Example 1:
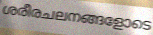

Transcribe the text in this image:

ശരീരചലനങ്ങളോടെ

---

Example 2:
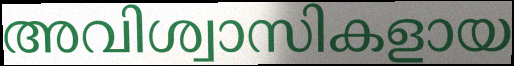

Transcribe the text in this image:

അവിശ്വാസികളായ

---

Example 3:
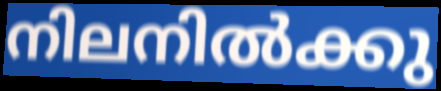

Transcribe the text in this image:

നിലനിൽക്കു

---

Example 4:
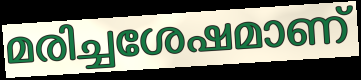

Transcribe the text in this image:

മരിച്ചശേഷമാണ്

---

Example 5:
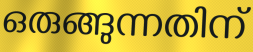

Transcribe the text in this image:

ഒരുങ്ങുന്നതിന്